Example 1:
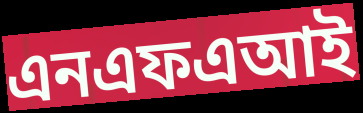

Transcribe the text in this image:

এনএফএআই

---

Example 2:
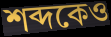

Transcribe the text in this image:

শব্দকেও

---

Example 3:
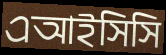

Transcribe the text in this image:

এআইসিসি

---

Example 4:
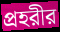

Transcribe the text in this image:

প্রহরীর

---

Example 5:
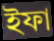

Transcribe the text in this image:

ইফা